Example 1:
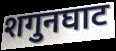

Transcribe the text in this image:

शगुनघाट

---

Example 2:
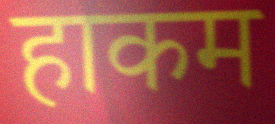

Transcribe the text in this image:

हाकम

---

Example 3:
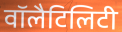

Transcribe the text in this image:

वॉलैटिलिटी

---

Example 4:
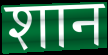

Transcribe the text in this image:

शान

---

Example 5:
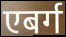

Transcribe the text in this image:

एबर्ग